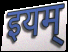
इयम्